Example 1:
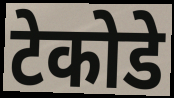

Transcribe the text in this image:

टेकोडे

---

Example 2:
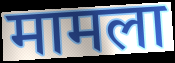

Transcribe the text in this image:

मामला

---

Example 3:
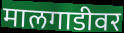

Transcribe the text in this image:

मालगाडीवर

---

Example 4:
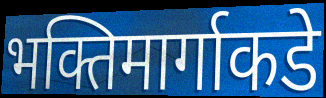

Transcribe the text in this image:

भक्तिमार्गाकडे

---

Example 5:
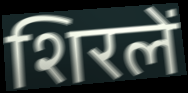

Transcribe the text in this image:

शिरलें